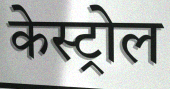
केस्ट्रोल